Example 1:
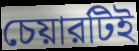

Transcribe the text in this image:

চেয়ারটিই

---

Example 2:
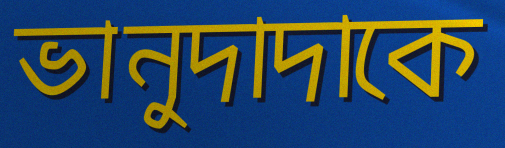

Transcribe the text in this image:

ভানুদাদাকে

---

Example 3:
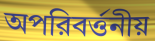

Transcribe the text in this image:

অপরিবর্ত্তনীয়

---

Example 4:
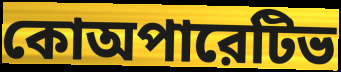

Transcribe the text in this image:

কোঅপারেটিভ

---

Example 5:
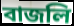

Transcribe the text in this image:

বাজলি